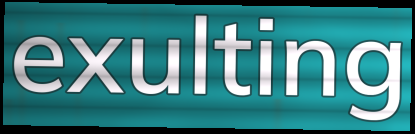
exulting